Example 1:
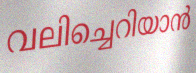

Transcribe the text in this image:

വലിച്ചെറിയാൻ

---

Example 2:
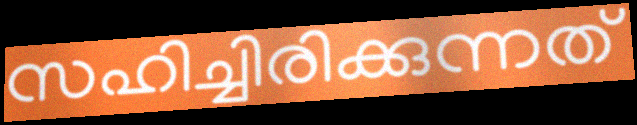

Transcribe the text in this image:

സഹിച്ചിരിക്കുന്നത്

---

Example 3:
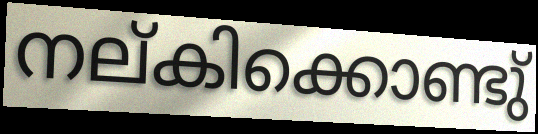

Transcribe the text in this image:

നല്കിക്കൊണ്ടു്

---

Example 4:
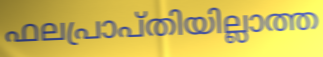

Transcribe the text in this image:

ഫലപ്രാപ്തിയില്ലാത്ത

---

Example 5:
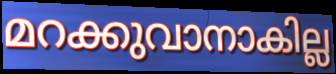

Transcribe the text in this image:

മറക്കുവാനാകില്ല